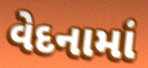
વેદનામાં